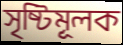
সৃষ্টিমূলক